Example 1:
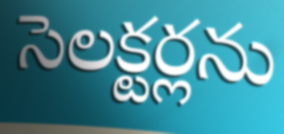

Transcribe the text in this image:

సెలక్టర్లను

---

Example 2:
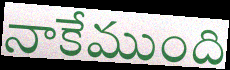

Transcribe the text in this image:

నాకేముంది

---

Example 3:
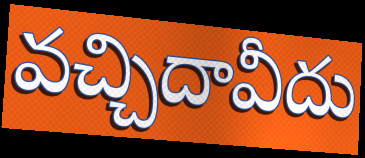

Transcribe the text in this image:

వచ్చిదావీదు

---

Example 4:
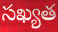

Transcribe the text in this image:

సఖ్యత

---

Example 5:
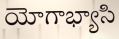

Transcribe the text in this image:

యోగాభ్యాసి